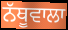
ਨੱਥੂਵਾਲਾ